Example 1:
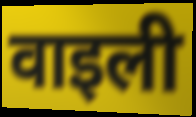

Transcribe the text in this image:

वाइली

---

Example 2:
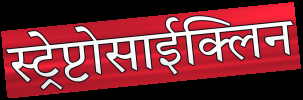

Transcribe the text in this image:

स्ट्रेप्टोसाईक्लिन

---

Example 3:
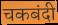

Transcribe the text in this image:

चकबंदी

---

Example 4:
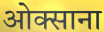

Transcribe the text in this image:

ओक्साना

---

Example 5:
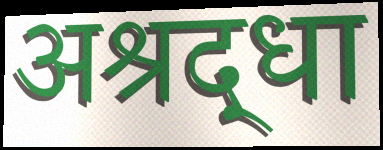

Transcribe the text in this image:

अश्रद्धा